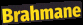
Brahmane